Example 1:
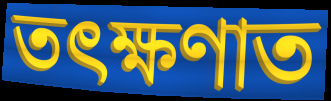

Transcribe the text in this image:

তৎক্ষণাত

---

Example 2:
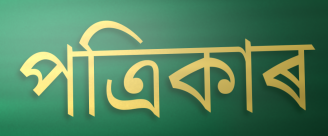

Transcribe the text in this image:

পত্ৰিকাৰ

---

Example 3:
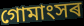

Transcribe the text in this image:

গোমাংসৰ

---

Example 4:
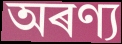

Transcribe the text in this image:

অৰণ্য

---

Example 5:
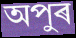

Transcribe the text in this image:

অপুৰ